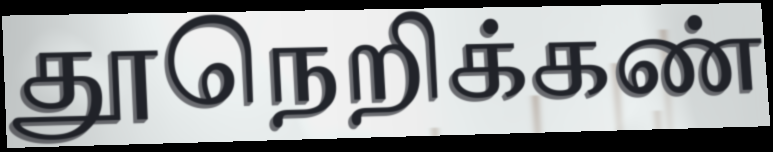
தூநெறிக்கண்